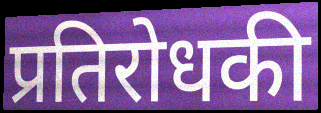
प्रतिरोधकी